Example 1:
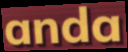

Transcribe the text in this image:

anda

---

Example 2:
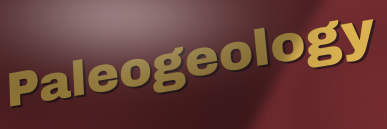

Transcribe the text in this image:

Paleogeology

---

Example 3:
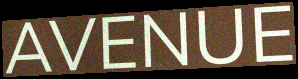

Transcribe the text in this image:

AVENUE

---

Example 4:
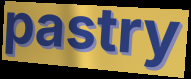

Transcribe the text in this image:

pastry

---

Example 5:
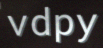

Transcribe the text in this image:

vdpy